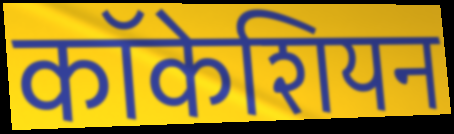
कॉकेशियन